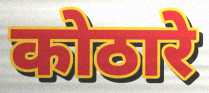
कोठारे